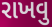
રાખવુ